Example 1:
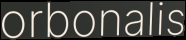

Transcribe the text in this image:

orbonalis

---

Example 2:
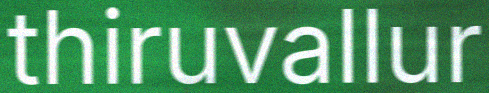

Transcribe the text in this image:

thiruvallur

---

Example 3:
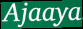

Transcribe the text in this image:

Ajaaya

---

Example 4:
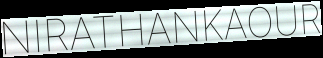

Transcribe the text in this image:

NIRATHANKAOUR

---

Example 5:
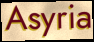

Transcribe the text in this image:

Asyria